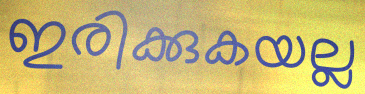
ഇരിക്കുകയല്ല